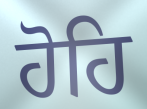
ਹੋਹਿ